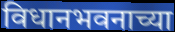
विधानभवनाच्या